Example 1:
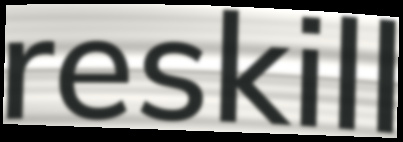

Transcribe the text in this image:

reskill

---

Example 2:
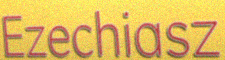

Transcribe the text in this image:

Ezechiasz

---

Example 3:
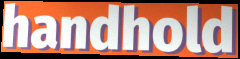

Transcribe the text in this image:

handhold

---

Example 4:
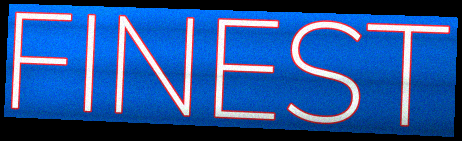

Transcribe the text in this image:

FINEST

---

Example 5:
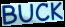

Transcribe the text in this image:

BUCK